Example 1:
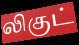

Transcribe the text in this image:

லிகுட்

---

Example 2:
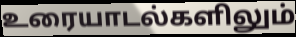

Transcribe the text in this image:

உரையாடல்களிலும்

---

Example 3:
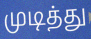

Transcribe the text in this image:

முடித்து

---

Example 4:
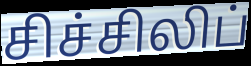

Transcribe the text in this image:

சிச்சிலிப்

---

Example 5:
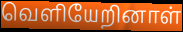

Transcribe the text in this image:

வெளியேறினாள்